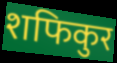
शफिकुर